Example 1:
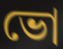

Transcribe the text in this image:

ভো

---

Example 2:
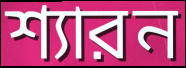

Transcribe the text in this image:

শ্যারন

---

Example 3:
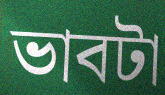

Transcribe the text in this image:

ভাবটা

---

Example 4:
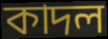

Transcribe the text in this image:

কাদল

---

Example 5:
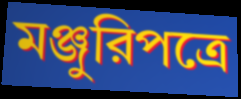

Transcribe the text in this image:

মঞ্জুরিপত্রে